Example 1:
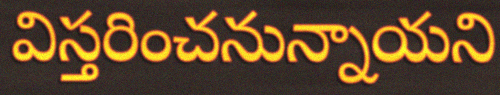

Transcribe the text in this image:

విస్తరించనున్నాయని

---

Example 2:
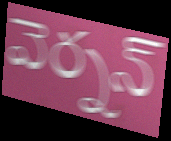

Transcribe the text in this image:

వెర్నన్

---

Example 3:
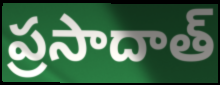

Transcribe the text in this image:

ప్రసాదాత్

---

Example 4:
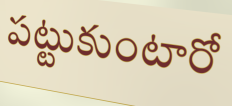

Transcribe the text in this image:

పట్టుకుంటారో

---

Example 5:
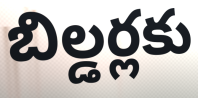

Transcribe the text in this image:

బిల్డర్లకు